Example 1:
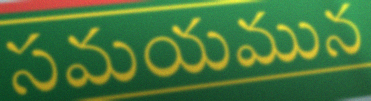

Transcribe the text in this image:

సమయమున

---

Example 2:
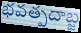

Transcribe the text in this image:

భవత్పదాబ్జ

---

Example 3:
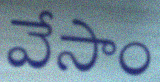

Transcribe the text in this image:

వేసాం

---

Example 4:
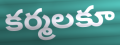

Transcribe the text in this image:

కర్మలకూ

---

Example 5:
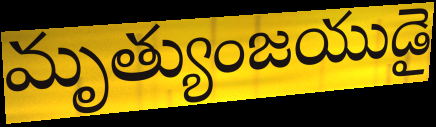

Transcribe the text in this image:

మృత్యుంజయుడై